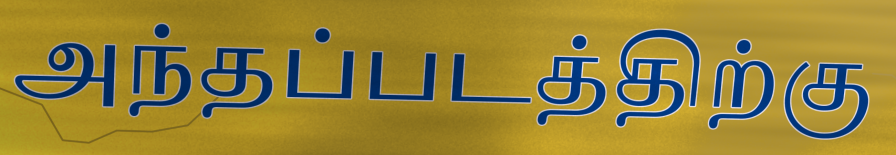
அந்தப்படத்திற்கு